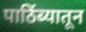
पाठिंब्यातून